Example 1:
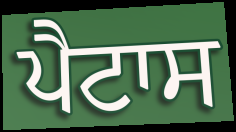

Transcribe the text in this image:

ਪੈਟਾਸ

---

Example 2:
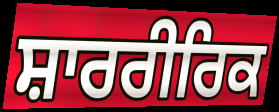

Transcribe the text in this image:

ਸ਼ਾਰਰੀਰਿਕ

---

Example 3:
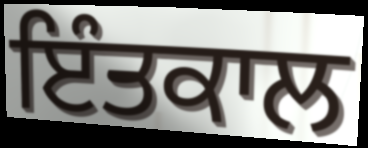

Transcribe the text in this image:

ਇੰਤਕਾਲ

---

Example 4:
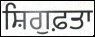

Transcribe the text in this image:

ਸ਼ਿਗੁਫ਼ਤਾ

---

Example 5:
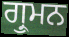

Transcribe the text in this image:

ਗ੍ਰੁਮਨ